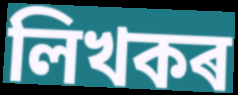
লিখকৰ